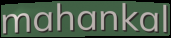
mahankal